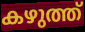
കഴുത്ത്